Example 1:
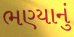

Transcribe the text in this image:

ભણ્યાનું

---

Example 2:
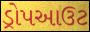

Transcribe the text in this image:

ડ્રોપઆઉટ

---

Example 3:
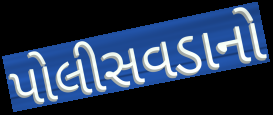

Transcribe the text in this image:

પોલીસવડાનો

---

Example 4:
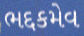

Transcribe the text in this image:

ભદ્દકમેવ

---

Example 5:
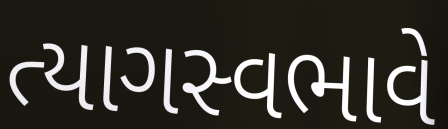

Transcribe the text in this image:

ત્યાગસ્વભાવે